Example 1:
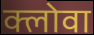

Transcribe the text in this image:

क्लोवा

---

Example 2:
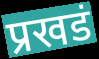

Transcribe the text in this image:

प्रखडं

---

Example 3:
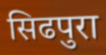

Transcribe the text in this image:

सिढपुरा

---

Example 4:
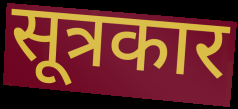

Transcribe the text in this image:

सूत्रकार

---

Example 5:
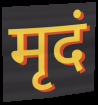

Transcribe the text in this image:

मृदं